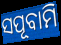
ସପୂବାମି